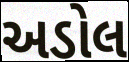
અડોલ